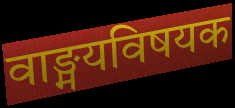
वाङ्मयविषयक